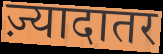
ज़्यादातर